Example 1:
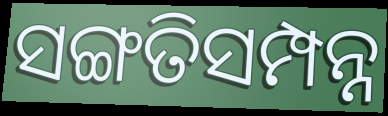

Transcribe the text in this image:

ସଙ୍ଗତିସମ୍ପନ୍ନ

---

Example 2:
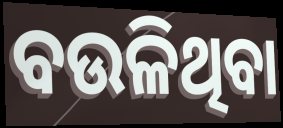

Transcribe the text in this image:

ବଉଳିଥିବା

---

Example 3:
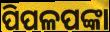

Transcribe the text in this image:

ପିପଳପଙ୍କା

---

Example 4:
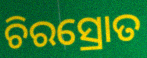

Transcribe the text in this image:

ଚିରସ୍ରୋତ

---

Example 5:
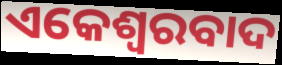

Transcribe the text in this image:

ଏକେଶ୍ୱରବାଦ